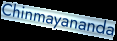
Chinmayananda